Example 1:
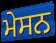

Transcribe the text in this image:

ਮੇਸਨ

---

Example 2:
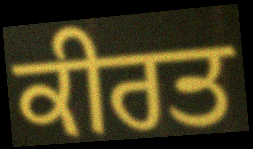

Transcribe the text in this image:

ਕੀਰਤ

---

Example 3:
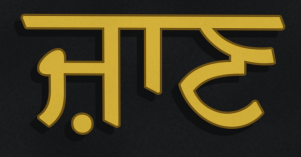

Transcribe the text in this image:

ਜ਼ਾਣ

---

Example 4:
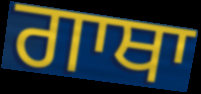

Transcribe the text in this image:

ਗਾਥਾ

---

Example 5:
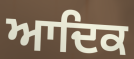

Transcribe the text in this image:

ਆਦਿਕ